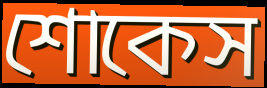
শোকেস